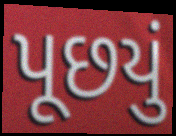
પૂછયું